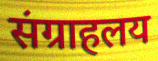
संग्राहलय